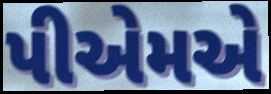
પીએમએ